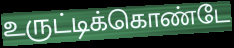
உருட்டிக்கொண்டே